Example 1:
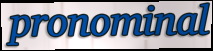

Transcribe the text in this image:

pronominal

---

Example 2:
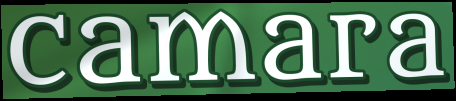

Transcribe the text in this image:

camara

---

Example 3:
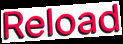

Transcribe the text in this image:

Reload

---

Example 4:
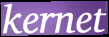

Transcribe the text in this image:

kernet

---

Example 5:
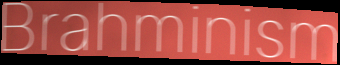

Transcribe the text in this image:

Brahminism